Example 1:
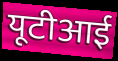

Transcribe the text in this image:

यूटीआई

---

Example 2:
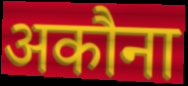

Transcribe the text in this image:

अकौना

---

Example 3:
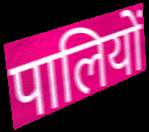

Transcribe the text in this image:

पालियों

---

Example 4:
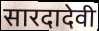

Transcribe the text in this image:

सारदादेवी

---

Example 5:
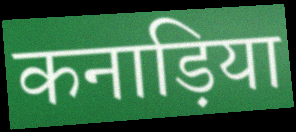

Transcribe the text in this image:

कनाड़िया